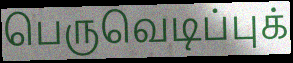
பெருவெடிப்புக்